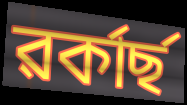
ৱৰ্কাৰ্ছ